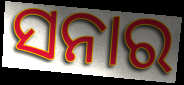
ସନାର